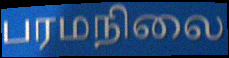
பரமநிலை